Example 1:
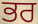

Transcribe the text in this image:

ਭਰ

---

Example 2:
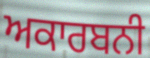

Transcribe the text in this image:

ਅਕਾਰਬਨੀ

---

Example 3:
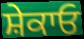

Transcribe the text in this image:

ਸ਼ੇਕਾਓ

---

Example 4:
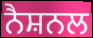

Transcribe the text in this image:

ਨੈਸ਼ਨਲ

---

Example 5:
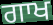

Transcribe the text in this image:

ਗਾਖ